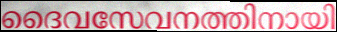
ദൈവസേവനത്തിനായി